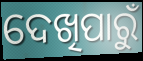
ଦେଖିପାରୁଁ